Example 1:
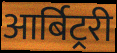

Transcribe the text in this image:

आर्बिट्ररी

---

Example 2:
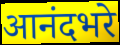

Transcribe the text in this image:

आनंदभरे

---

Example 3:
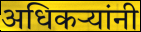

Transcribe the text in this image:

अधिकऱ्यांनी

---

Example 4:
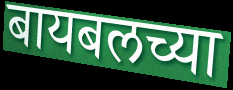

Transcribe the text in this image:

बायबलच्या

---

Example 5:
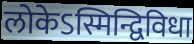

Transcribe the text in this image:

लोकेऽस्मिन्द्विविधा